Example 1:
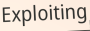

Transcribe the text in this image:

Exploiting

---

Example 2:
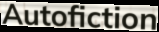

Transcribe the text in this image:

Autofiction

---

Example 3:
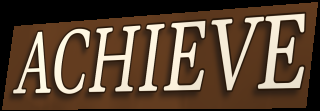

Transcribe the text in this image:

ACHIEVE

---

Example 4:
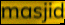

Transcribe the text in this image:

masjid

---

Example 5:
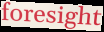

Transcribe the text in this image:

foresight